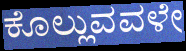
ಕೊಲ್ಲುವವಳೇ